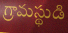
గ్రామస్థుడి